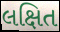
લક્ષિત